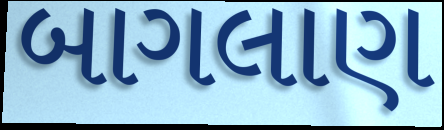
બાગલાણ